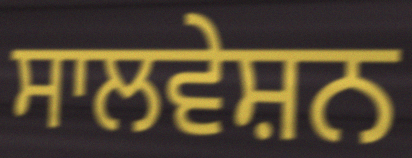
ਸਾਲਵੇਸ਼ਨ